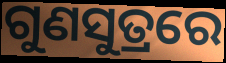
ଗୁଣସୁତ୍ରରେ